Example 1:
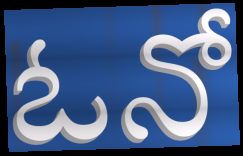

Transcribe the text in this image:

ఓనో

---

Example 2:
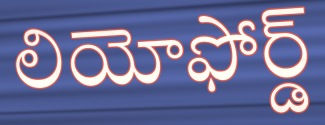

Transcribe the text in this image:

లియోఫోర్డ్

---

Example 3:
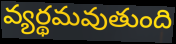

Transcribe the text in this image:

వ్యర్థమవుతుంది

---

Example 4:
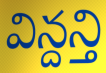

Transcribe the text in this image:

విన్దన్తి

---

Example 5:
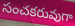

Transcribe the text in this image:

సంచకరువుగా